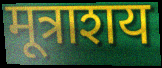
मूत्राशय